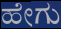
ಹೇಗು